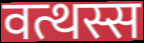
वत्थस्स